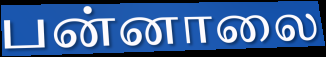
பன்னாலை